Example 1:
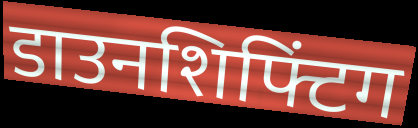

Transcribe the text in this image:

डाउनशिफ्टिंग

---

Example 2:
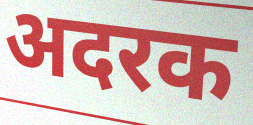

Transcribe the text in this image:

अदरक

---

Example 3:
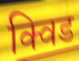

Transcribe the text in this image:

क्विड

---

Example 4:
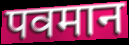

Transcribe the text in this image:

पवमान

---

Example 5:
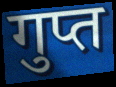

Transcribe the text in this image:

गुप्त